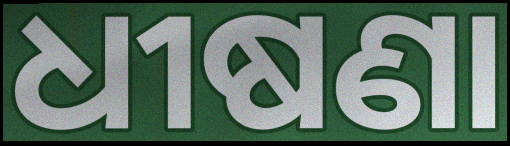
ଧୀଷଣା